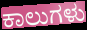
ಕಾಲುಗಳು